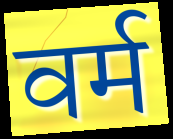
वर्म